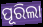
ପୂରିଲା